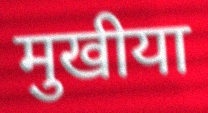
मुखीया